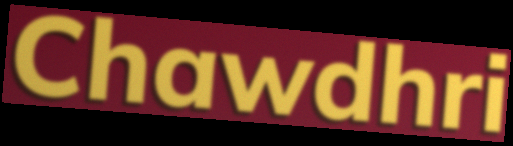
Chawdhri